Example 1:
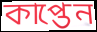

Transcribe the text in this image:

কাপ্তেন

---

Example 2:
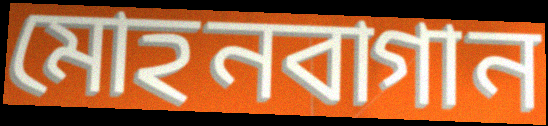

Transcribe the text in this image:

মোহনবাগান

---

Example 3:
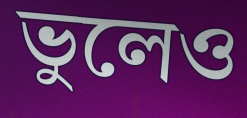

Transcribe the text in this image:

ভুলেও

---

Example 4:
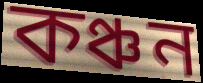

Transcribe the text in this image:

কঞ্চন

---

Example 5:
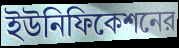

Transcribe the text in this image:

ইউনিফিকেশনের